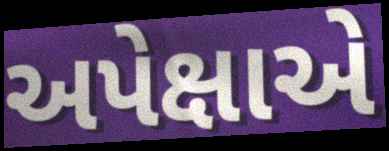
અપેક્ષાએ